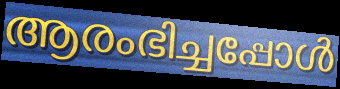
ആരംഭിച്ചപ്പോൾ